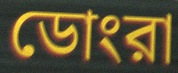
ডোংরা